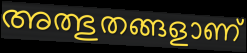
അത്ഭുതങ്ങളാണ്